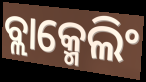
ବ୍ଲାକ୍ମେଲିଂ